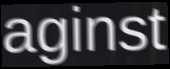
aginst